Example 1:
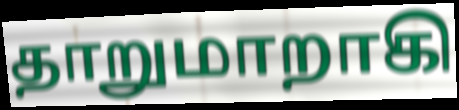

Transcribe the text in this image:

தாறுமாறாகி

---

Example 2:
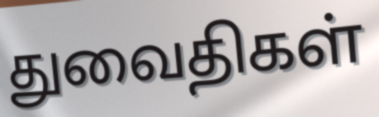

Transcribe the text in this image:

துவைதிகள்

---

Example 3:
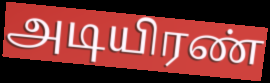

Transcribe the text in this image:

அடியிரண்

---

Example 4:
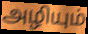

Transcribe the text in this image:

அழியும்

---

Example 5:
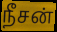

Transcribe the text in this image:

நீசன்